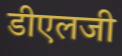
डीएलजी